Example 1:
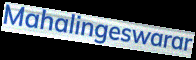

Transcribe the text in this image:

Mahalingeswarar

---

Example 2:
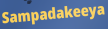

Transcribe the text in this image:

Sampadakeeya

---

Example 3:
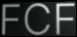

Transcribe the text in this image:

FCF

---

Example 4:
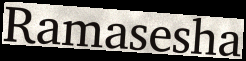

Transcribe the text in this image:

Ramasesha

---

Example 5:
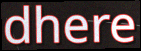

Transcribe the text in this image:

dhere